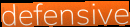
defensive